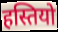
हस्तियो